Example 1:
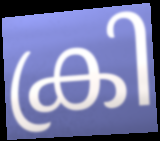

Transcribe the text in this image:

ക്രി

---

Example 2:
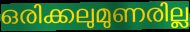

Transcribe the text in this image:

ഒരിക്കലുമുണരില്ല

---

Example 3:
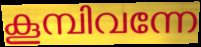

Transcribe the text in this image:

കൂമ്പിവന്നേ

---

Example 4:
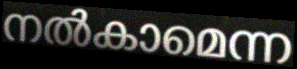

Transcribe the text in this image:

നൽകാമെന്ന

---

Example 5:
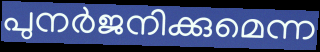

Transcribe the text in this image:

പുനർജനിക്കുമെന്ന